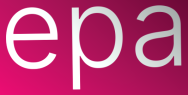
epa